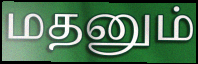
மதனும்